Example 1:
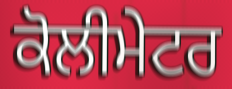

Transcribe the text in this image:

ਕੋਲੀਮੇਟਰ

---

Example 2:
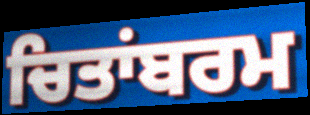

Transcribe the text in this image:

ਚਿਤਾਂਬਰਮ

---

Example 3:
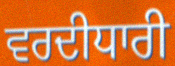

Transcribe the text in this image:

ਵਰਦੀਧਾਰੀ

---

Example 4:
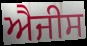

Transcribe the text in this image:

ਐਜੀਸ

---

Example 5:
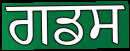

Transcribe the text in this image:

ਗਡਸ